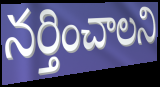
నర్తించాలని